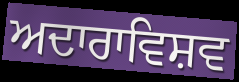
ਅਦਾਰਾਵਿਸ਼ਵ